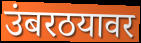
उंबरठयावर